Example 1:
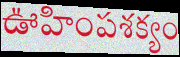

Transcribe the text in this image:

ఊహింపశక్యం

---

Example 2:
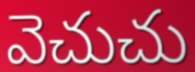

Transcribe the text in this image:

వెచుచు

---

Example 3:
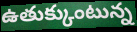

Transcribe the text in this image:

ఉతుక్కుంటున్న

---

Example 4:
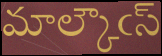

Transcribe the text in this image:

మాల్కౌఁస్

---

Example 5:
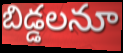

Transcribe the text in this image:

బిడ్డలనూ